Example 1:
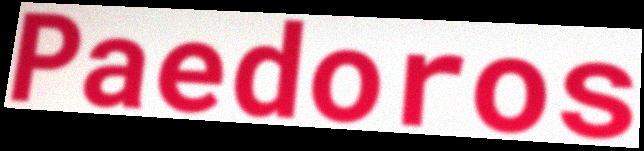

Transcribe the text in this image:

Paedoros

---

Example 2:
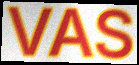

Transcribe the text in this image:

VAS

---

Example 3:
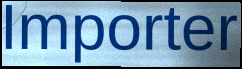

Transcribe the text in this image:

Importer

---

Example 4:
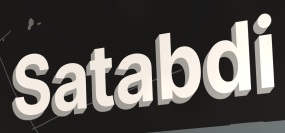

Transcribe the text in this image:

Satabdi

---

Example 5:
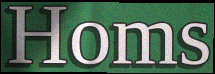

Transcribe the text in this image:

Homs